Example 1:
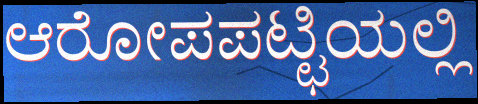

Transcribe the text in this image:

ಆರೋಪಪಟ್ಟಿಯಲ್ಲಿ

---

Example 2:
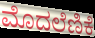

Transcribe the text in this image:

ಮೊದಲೆಣಿಕೆ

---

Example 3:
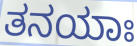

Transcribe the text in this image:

ತನಯಾಃ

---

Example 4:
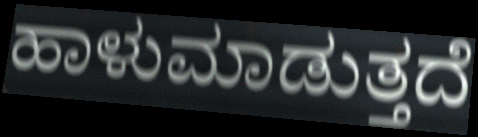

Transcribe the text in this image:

ಹಾಳುಮಾಡುತ್ತದೆ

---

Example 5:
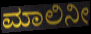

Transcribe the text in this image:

ಮಾಲಿನೀ